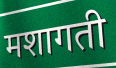
मशागती